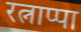
रत्नाप्पा